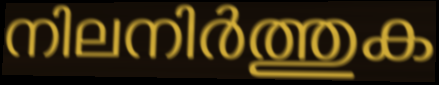
നിലനിർത്തുക